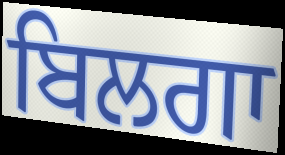
ਬਿਲਗਾ